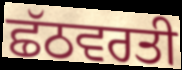
ਛੱਠਵਰਤੀ